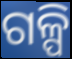
ଗଳ୍ପି